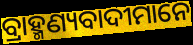
ବ୍ରାହ୍ମଣ୍ୟବାଦୀମାନେ